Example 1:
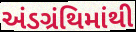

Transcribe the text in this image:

અંડગ્રંથિમાંથી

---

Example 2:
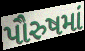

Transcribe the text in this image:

પૌરુષમાં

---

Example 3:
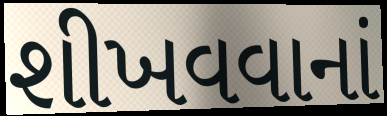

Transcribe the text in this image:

શીખવવાનાં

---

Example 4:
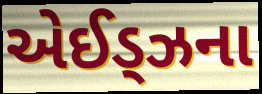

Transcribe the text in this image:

એઈડ્ઝના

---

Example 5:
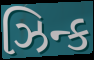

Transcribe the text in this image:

ઝિન્ક